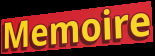
Memoire